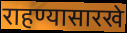
राहण्यासारखे